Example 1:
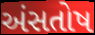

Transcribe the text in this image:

અંસતોષ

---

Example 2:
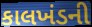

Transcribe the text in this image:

કાલખંડની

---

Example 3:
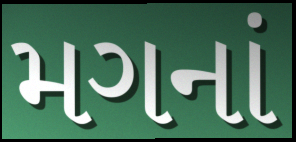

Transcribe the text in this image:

મગનાં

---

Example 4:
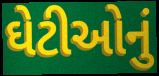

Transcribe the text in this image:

ઘેટીઓનું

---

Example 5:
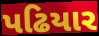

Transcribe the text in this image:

પઢિયાર